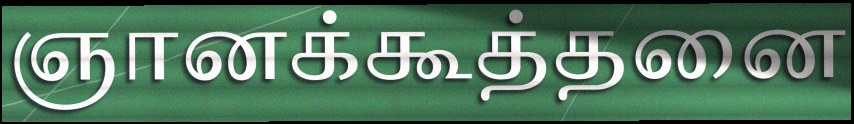
ஞானக்கூத்தனை